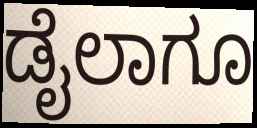
ಡೈಲಾಗೂ